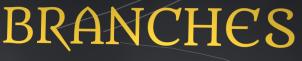
BRANCHES